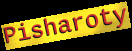
Pisharoty